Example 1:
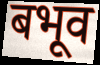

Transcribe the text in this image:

बभूव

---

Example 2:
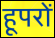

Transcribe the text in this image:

हूपरों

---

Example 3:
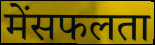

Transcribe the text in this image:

मेंसफलता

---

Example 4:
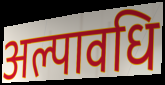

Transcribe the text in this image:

अल्पावधि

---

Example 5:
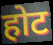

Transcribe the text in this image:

होट